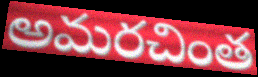
అమరచింత